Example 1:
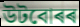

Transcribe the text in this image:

উটবোৰৰ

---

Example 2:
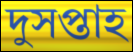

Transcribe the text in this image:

দুসপ্তাহ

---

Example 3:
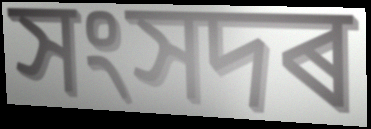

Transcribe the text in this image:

সংসদৰ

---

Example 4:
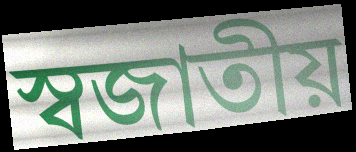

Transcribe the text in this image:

স্বজাতীয়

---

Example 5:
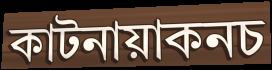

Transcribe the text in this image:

কাটনায়াকনচ